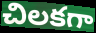
చిలకగా